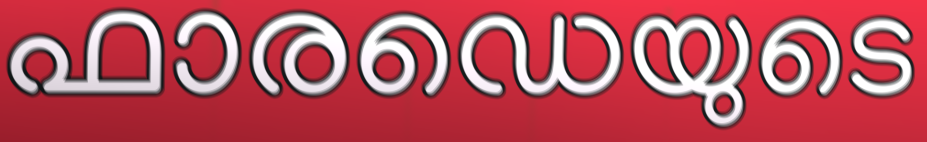
ഫാരഡെയുടെ